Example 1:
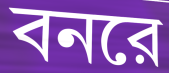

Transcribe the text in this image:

বনরে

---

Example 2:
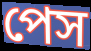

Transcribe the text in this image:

পেস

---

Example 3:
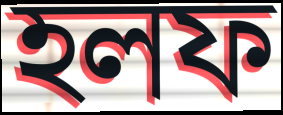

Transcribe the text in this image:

হলফ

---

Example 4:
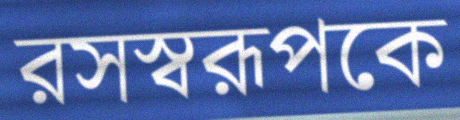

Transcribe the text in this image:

রসস্বরূপকে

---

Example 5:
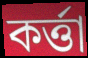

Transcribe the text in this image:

কর্ত্তা